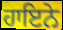
ਹਾਇਨੇ